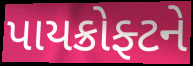
પાયક્રોફ્ટને